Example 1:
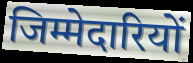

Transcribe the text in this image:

जिम्मेदारियों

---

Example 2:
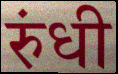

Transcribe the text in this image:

रुंधी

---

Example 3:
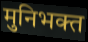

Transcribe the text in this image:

मुनिभक्त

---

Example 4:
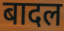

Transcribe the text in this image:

बादल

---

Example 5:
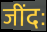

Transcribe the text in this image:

जींदः